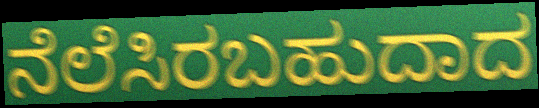
ನೆಲೆಸಿರಬಹುದಾದ